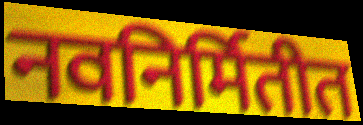
नवनिर्मितीत